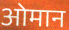
ओमान